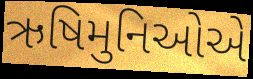
ઋષિમુનિઓએ